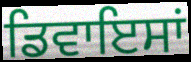
ਡਿਵਾਇਸਾਂ